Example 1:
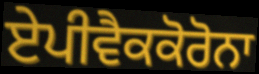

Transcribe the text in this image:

ਏਪੀਵੈਕਕੋਰੋਨਾ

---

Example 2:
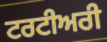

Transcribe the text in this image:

ਟਰਟੀਅਰੀ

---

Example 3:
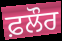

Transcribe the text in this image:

ਫ਼ਲੌਰ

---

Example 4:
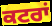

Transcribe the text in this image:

ਕਟਰਾਂ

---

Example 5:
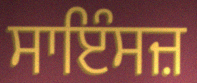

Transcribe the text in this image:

ਸਾਇੰਸਜ਼